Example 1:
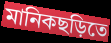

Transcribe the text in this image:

মানিকছড়িতে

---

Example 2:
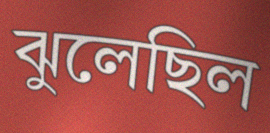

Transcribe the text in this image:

ঝুলেছিল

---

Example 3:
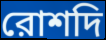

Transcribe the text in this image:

রোশদি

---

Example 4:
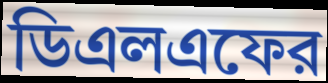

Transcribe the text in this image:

ডিএলএফের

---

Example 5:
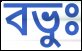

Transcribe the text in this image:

বভুঃ